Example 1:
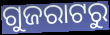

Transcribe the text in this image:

ଗୁଜରାଟରୁ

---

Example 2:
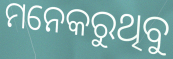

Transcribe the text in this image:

ମନେକରୁଥିବୁ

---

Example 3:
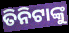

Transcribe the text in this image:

ତିନିଟାଙ୍କୁ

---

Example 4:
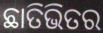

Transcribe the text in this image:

ଛାତିଭିତର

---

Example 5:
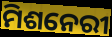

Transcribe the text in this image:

ମିଶନେରୀ